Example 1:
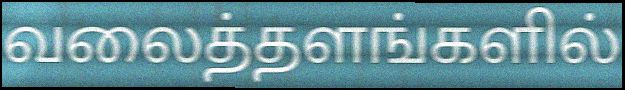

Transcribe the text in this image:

வலைத்தளங்களில்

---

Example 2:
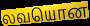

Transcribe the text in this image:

லவயொன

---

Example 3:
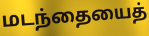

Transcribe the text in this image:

மடந்தையைத்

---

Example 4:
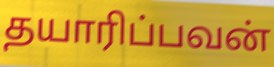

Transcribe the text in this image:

தயாரிப்பவன்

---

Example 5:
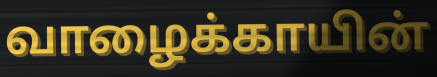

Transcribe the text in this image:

வாழைக்காயின்